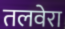
तलवेरा